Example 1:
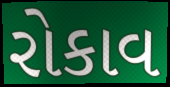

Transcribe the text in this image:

રોકાવ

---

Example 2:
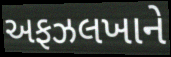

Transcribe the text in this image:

અફઝલખાને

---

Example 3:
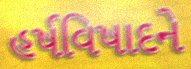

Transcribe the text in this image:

હર્ષવિષાદને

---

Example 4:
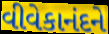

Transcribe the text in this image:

વીવેકાનંદને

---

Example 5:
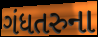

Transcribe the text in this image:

ગંધતરુના